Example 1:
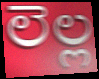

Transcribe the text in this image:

లెల్ల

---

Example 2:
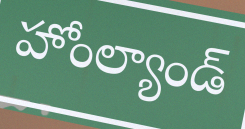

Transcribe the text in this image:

హోంల్యాండ్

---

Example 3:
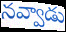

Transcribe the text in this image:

నవ్వాడు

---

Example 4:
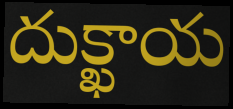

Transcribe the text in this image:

దుక్ఖాయ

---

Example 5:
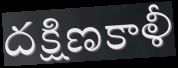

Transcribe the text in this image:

దక్షిణకాళీ